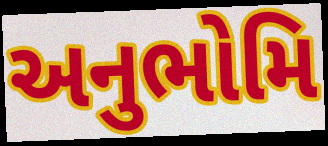
અનુભોમિ